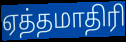
ஏத்தமாதிரி